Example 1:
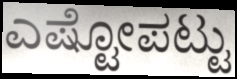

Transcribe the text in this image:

ಎಷ್ಟೋಪಟ್ಟು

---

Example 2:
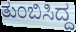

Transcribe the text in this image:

ತುಂಬಿಸಿದ್ದ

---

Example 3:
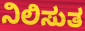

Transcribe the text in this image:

ನಿಲಿಸುತ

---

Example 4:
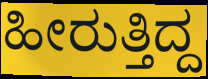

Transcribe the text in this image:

ಹೀರುತ್ತಿದ್ದ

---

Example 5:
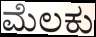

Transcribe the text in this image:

ಮೆಲಕು